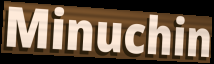
Minuchin